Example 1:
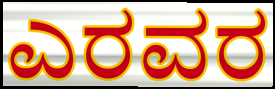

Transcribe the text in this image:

ಎರವರ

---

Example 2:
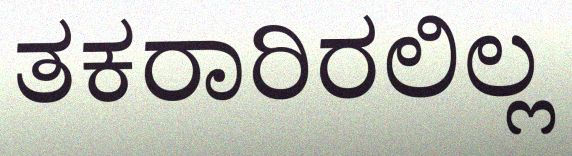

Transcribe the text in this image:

ತಕರಾರಿರಲಿಲ್ಲ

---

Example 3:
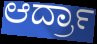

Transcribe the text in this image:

ಆರ್ದ್ರಾ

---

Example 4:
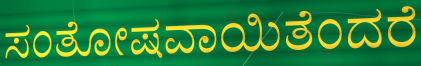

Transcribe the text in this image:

ಸಂತೋಷವಾಯಿತೆಂದರೆ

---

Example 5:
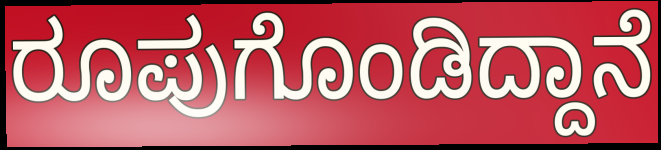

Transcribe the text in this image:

ರೂಪುಗೊಂಡಿದ್ದಾನೆ